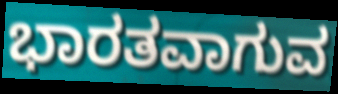
ಭಾರತವಾಗುವ